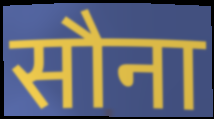
सौना